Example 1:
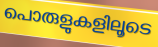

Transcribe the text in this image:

പൊരുളുകളിലൂടെ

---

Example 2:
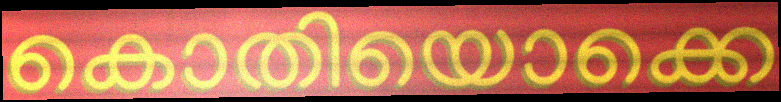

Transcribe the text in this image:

കൊതിയൊക്കെ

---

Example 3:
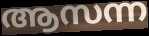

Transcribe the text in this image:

ആസന്ന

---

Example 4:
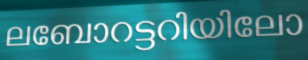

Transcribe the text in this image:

ലബോറട്ടറിയിലോ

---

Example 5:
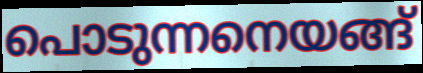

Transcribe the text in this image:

പൊടുന്നനെയങ്ങ്